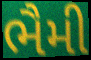
ભૈમી